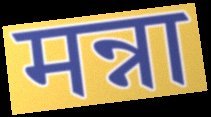
मन्ना